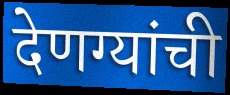
देणग्यांची